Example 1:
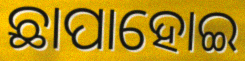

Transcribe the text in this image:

ଛାପାହୋଇ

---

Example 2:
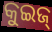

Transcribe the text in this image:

କୁଇଜ୍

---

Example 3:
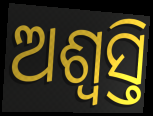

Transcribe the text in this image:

ଅଶ୍ୱସ୍ତି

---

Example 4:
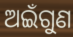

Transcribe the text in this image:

ଅଇଁଗୁଣ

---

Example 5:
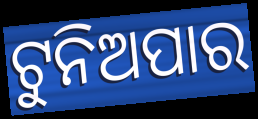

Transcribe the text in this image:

ଟୁନିଅପାର